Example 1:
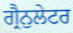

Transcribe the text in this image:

ਗ੍ਰੈਨੁਲੇਟਰ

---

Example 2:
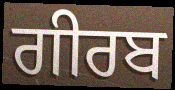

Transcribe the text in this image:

ਗੀਰਬ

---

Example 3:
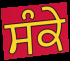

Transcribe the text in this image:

ਸੰਕੇ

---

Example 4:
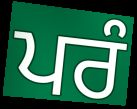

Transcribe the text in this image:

ਪਰੰ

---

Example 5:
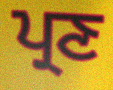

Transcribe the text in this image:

ਪ੍ਰਣ